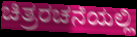
ಚಿತ್ರರಚನೆಯಲ್ಲಿ